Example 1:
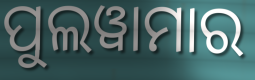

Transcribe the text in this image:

ପୁଲୱାମାର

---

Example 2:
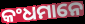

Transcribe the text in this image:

କଂଧମାନେ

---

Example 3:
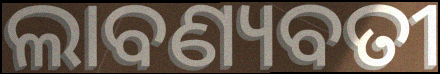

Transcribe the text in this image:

ଲାବଣ୍ୟବତୀ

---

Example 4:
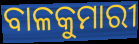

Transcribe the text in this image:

ବାଳକୁମାରୀ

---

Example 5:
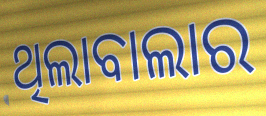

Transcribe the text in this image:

ଥିଲାବାଲାର